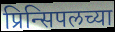
प्रिन्सिपलच्या